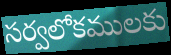
సర్వలోకములకు